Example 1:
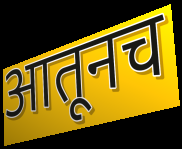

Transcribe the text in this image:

आतूनच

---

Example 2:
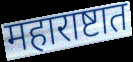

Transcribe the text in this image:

महाराष्टात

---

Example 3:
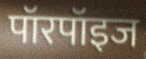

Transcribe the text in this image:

पॉरपॉइज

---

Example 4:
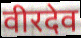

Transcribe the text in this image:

वीरदेव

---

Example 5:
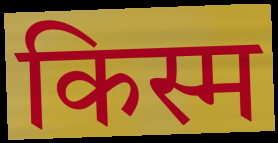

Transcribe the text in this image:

किस्म